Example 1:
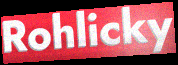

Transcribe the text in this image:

Rohlicky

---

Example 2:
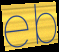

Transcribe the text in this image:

eb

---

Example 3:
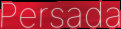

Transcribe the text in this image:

Persada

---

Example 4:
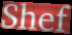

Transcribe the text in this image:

Shef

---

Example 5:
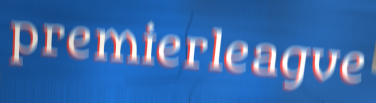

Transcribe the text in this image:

premierleague